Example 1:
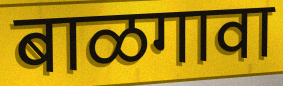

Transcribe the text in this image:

बाळगावा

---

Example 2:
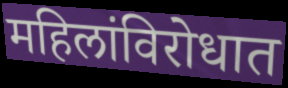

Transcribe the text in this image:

महिलांविरोधात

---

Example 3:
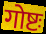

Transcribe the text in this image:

गोष्टः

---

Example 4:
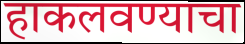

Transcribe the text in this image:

हाकलवण्याचा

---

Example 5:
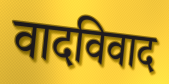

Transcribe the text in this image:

वादविवाद